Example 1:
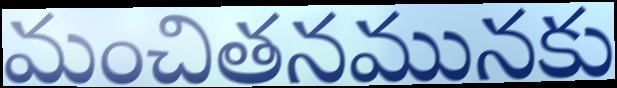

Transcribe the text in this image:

మంచితనమునకు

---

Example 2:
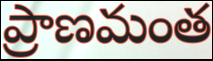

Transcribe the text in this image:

ప్రాణమంత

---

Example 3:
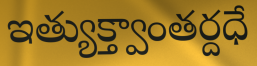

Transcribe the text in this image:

ఇత్యుక్త్వాంతర్దధే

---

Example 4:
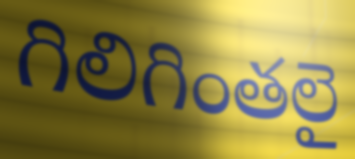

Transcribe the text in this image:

గిలిగింతలై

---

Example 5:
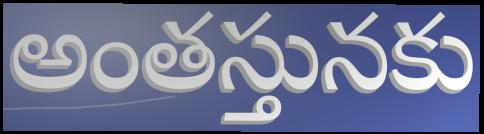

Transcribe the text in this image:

అంతస్తునకు